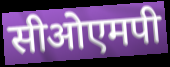
सीओएमपी